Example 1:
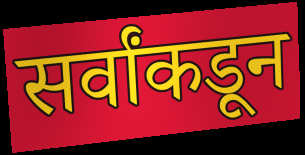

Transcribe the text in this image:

सर्वांकडून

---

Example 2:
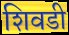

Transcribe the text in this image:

शिवडी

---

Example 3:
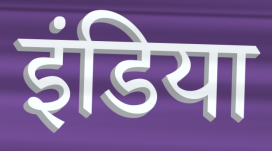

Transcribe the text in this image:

इंडिया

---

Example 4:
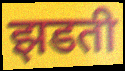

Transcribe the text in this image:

झडती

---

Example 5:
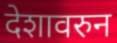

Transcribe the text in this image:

देशावरुन